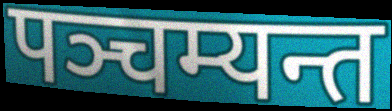
पञ्चम्यन्त